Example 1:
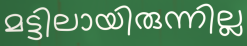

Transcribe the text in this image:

മട്ടിലായിരുന്നില്ല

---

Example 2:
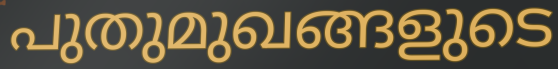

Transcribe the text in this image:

പുതുമുഖങ്ങളുടെ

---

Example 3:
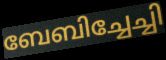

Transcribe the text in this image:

ബേബിച്ചേച്ചി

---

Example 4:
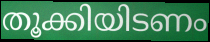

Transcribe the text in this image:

തൂക്കിയിടണം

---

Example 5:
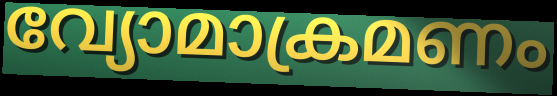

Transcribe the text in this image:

വ്യോമാക്രമണം